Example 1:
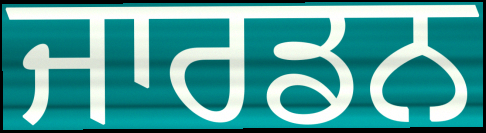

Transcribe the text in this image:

ਜਾਰਡਨ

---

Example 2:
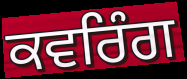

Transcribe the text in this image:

ਕਵਰਿੰਗ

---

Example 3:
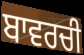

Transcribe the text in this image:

ਬਾਵਰਚੀ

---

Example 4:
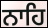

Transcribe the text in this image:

ਨਾਹਿ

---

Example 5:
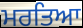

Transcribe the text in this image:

ਮਰਤਿਆ